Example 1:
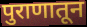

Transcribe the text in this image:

पुराणातून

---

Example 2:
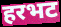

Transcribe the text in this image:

हरभट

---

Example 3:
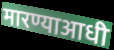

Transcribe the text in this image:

मारण्याआधी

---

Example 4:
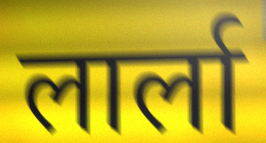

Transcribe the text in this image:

लार्ला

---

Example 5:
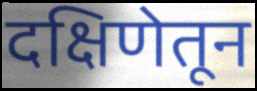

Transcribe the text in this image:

दक्षिणेतून